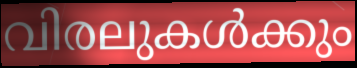
വിരലുകൾക്കും